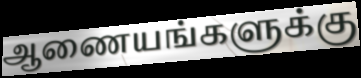
ஆணையங்களுக்கு